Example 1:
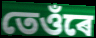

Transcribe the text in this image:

তেওঁৰে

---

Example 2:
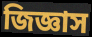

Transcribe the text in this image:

জিজ্ঞাস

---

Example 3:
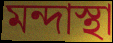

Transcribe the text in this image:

মন্দাস্থা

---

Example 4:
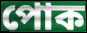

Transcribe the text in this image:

পোক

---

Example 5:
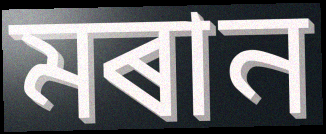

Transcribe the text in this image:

মৰান